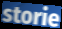
storie